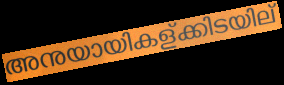
അനുയായികള്ക്കിടയില്